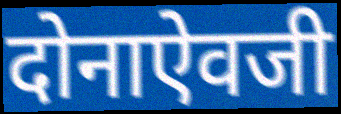
दोनाऐवजी